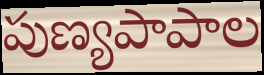
పుణ్యపాపాల